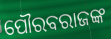
ପୌରବରାଜଙ୍କ